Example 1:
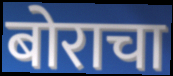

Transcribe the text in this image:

बोराचा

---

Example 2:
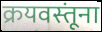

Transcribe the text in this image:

क्रयवस्तूंना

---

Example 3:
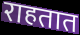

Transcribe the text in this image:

राहतात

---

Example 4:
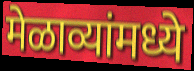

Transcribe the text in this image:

मेळाव्यांमध्ये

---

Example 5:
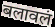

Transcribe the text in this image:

बलावलं